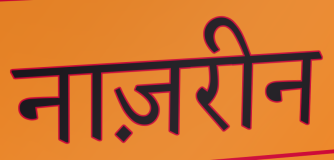
नाज़रीन